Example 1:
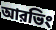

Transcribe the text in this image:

আরভিং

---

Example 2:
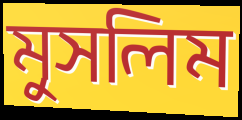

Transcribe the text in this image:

মুসলিম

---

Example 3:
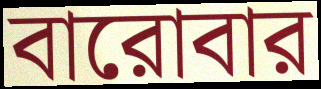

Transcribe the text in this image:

বারোবার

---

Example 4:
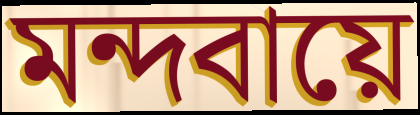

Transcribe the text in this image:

মন্দবায়ে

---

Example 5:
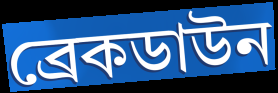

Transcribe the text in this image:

ব্রেকডাউন